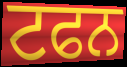
ਟਫਨ